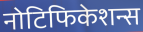
नोटिफिकेशन्स